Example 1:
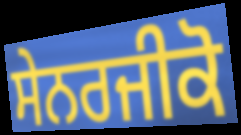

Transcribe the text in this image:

ਸੇਨਰਜੀਕੋ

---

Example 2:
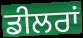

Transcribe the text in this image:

ਡੀਲਰਾਂ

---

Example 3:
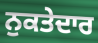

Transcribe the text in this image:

ਨੁਕਤੇਦਾਰ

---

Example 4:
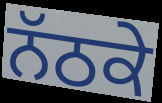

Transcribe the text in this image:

ਨੱਠਕੇ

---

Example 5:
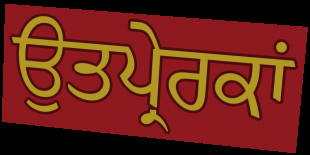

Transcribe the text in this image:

ਉਤਪ੍ਰੇਰਕਾਂ